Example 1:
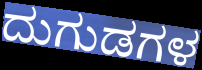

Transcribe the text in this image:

ದುಗುಡಗಳ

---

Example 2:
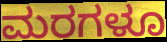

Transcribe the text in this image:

ಮರಗಳೂ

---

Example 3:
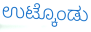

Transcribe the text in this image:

ಉಟ್ಕೊಂಡು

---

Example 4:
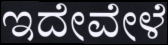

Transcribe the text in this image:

ಇದೇವೇಳೆ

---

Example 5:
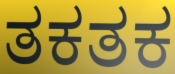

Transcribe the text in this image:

ತಕತಕ